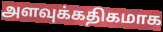
அளவுக்கதிகமாக